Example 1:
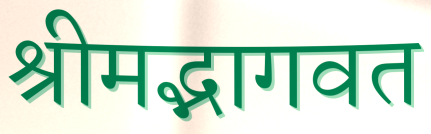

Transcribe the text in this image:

श्रीमद्भागवत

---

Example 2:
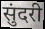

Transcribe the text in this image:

सुंदरी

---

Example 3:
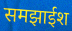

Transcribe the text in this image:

समझाईश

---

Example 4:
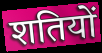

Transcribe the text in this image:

शतियों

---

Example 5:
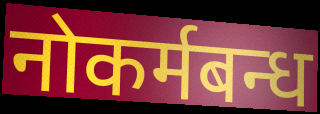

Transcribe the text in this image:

नोकर्मबन्ध